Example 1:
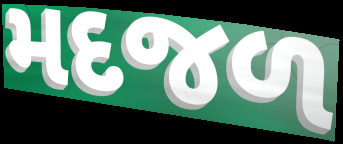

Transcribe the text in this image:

મદજળ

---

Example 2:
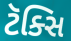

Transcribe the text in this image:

ટૅક્સિ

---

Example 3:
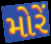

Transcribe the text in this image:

મોરેં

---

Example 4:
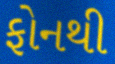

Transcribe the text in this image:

ફોનથી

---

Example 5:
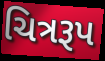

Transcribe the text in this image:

ચિત્રરૂપ